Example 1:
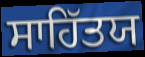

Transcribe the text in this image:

ਸਾਹਿੱਤਯ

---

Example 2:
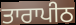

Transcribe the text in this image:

ਤਾਰਾਪੀਠ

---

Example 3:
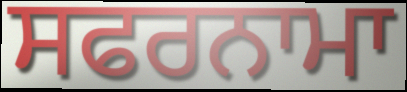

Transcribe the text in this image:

ਸਫਰਨਾਮਾ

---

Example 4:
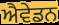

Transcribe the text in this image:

ਐਵੇਡਨ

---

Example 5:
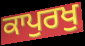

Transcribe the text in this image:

ਕਾਪੁਰਖੁ